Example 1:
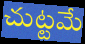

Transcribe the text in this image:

చుట్టమే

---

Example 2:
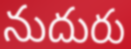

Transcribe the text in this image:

నుదురు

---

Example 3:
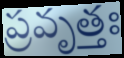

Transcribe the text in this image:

ప్రవృత్తః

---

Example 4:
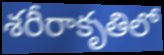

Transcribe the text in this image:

శరీరాకృతిలో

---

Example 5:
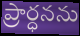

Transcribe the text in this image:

ప్రార్ధనను